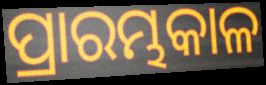
ପ୍ରାରମ୍ଭକାଳ